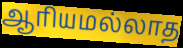
ஆரியமல்லாத